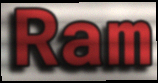
Ram